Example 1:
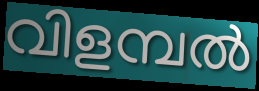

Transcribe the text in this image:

വിളമ്പൽ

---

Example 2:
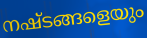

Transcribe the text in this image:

നഷ്ടങ്ങളെയും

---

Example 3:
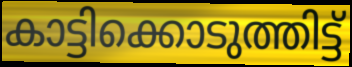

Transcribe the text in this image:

കാട്ടിക്കൊടുത്തിട്ട്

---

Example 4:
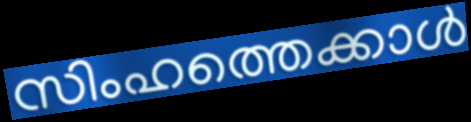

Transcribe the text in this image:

സിംഹത്തെക്കാൾ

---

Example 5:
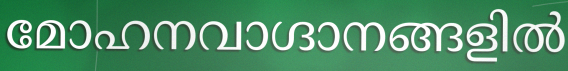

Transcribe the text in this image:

മോഹനവാഗ്ദാനങ്ങളിൽ